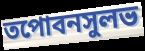
তপোবনসুলভ